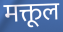
मक्तूल